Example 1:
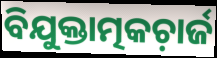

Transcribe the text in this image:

ବିଯୁକ୍ତାତ୍ମକଚ଼ାର୍ଜ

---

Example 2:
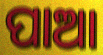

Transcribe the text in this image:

ପାଆ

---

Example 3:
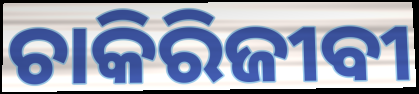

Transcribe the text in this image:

ଚାକିରିଜୀବୀ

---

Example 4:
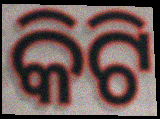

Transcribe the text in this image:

କିଟି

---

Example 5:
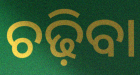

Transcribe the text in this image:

ଚଢ଼ିବା